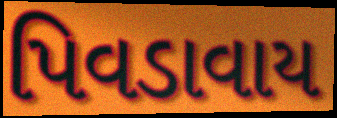
પિવડાવાય